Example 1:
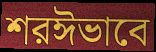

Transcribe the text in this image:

শরঈভাবে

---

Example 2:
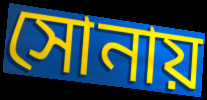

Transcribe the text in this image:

সোনায়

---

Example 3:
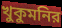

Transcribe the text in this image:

খুকুমনির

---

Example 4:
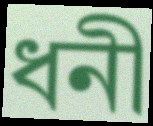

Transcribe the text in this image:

ধনী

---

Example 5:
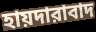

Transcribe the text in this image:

হায়দারাবাদ